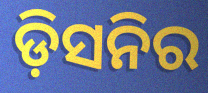
ଡ଼ିସନିର